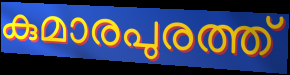
കുമാരപുരത്ത്